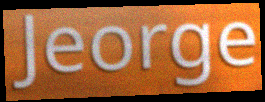
Jeorge